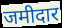
जमीदार